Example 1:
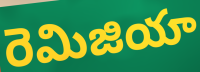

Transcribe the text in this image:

రెమిజియా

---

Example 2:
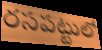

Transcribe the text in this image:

రసపట్టులో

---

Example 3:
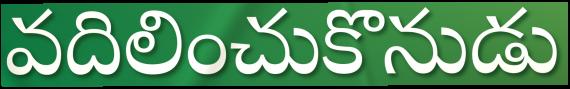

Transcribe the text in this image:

వదిలించుకొనుడు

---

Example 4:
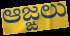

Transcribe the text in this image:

ఆజ్ఙలు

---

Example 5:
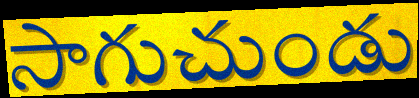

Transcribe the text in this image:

సాగుచుండు